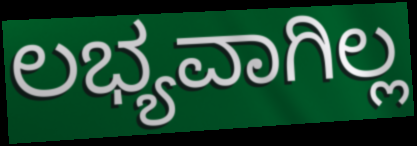
ಲಭ್ಯವಾಗಿಲ್ಲ